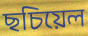
ছচিয়েল